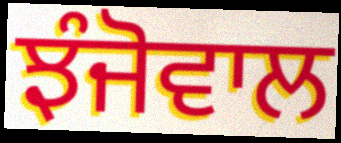
ਝੰਜੋਵਾਲ